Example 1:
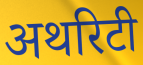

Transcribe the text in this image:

अथरिटी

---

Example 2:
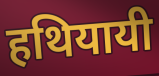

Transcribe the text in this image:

हथियायी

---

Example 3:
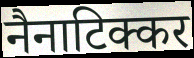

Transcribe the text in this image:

नैनाटिक्कर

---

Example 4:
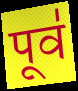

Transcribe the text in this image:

पूव॑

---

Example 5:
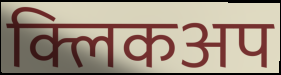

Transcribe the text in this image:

क्लिकअप